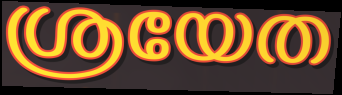
ശ്രയേത